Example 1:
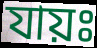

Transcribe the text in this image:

যায়ঃ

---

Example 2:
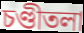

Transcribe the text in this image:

চণ্ডীতলা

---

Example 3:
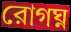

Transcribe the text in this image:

রোগঘ্ন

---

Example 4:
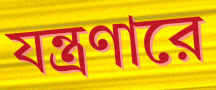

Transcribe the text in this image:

যন্ত্রণারে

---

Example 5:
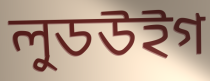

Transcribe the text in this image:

লুডউইগ